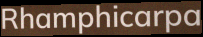
Rhamphicarpa